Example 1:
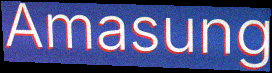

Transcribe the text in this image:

Amasung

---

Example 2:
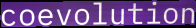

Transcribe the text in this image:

coevolution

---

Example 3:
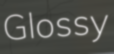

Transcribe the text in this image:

Glossy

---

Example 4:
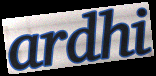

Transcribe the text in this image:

ardhi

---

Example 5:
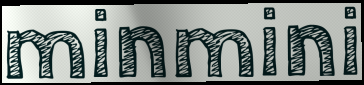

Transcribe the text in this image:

minmini